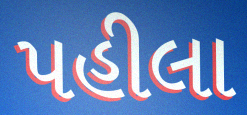
પહીલા